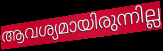
ആവശ്യമായിരുന്നില്ല